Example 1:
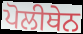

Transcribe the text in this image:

ਪੋਲੀਥੇਨ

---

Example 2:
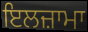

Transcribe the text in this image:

ਇਲਜ਼ਾਮਾ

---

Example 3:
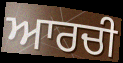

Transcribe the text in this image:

ਆਰਚੀ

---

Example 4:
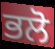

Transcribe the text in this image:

ਭਲੋ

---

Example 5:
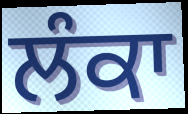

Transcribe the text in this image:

ਲੰਕਾ